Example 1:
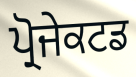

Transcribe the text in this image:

ਪ੍ਰੋਜੇਕਟਡ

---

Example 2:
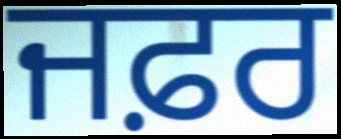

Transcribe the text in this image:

ਜਫ਼ਰ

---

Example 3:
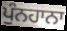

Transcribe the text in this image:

ਪੁੰਨਹਾਨਾ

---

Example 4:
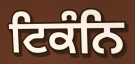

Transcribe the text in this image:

ਟਿਕੰਨਿ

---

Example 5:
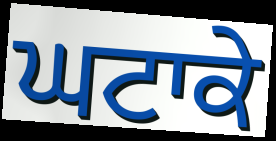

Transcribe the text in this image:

ਘਟਾਕੇ